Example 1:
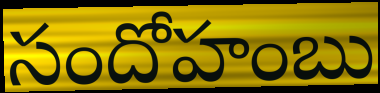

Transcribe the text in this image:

సందోహంబు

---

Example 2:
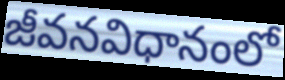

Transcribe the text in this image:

జీవనవిధానంలో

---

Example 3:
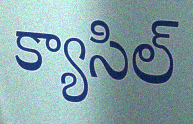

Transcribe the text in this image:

క్యాసిల్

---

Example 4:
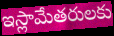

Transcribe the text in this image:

ఇస్లామేతరులకు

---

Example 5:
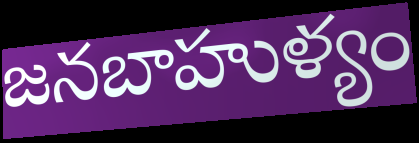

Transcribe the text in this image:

జనబాహుళ్యం